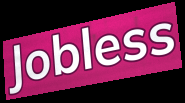
Jobless